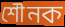
শৌনক